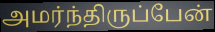
அமர்ந்திருப்பேன்